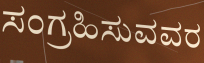
ಸಂಗ್ರಹಿಸುವವರ